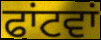
ਫਾਂਟਵਾਂ